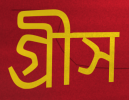
গ্রীস